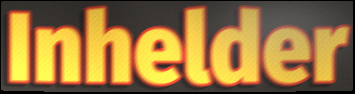
Inhelder